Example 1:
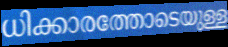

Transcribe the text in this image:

ധിക്കാരത്തോടെയുള്ള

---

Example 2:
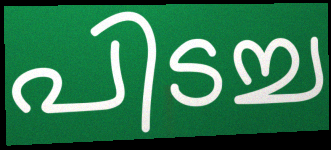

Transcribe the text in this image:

പിടച്ച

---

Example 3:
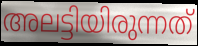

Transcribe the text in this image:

അലട്ടിയിരുന്നത്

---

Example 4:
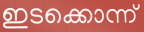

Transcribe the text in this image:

ഇടക്കൊന്ന്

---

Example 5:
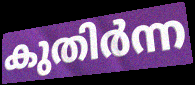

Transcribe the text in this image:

കുതിർന്ന